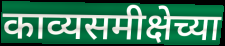
काव्यसमीक्षेच्या